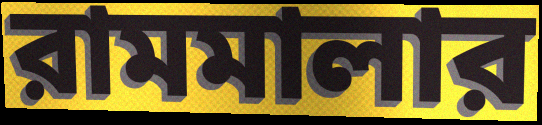
রামমালার